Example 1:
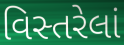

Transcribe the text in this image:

વિસ્તરેલાં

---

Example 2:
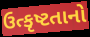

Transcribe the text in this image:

ઉત્કૃષ્ટતાનો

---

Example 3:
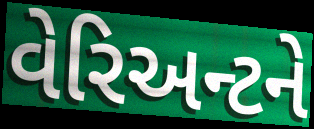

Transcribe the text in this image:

વેરિઅન્ટને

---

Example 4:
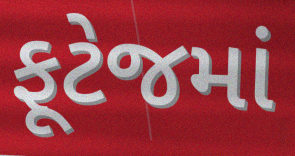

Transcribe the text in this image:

ફૂટેજમાં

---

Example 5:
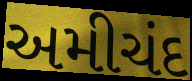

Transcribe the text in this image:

અમીચંદ